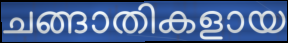
ചങ്ങാതികളായ